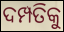
ଦମ୍ପତିକୁ